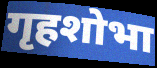
गृहशोभा